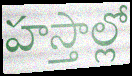
హస్తాల్లో